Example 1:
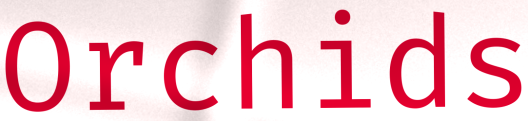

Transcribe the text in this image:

Orchids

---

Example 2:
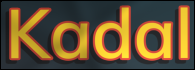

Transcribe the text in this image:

Kadal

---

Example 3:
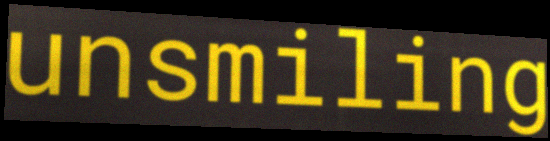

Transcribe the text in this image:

unsmiling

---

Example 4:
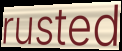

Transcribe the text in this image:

rusted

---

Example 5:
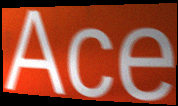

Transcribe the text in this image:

Ace